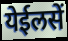
येईलसें